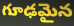
గూఢమైన